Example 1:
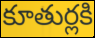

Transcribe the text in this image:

కూతుర్లకి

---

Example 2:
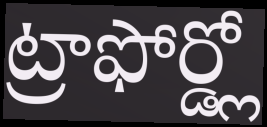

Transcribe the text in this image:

ట్రాఫోర్డ్లో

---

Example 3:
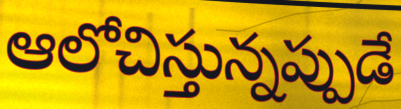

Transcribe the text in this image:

ఆలోచిస్తున్నప్పుడే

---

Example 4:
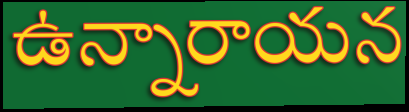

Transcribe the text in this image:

ఉన్నారాయన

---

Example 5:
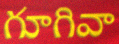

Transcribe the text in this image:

గూగివా